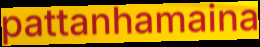
pattanhamaina